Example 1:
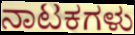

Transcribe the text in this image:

ನಾಟಕಗಳು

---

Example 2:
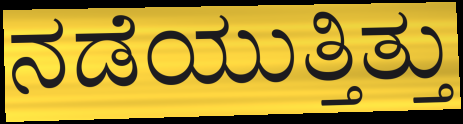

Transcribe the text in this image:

ನಡೆಯುತ್ತಿತ್ತು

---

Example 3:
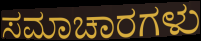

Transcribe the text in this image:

ಸಮಾಚಾರಗಳು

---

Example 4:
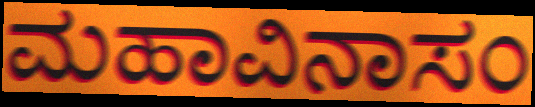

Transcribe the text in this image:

ಮಹಾವಿನಾಸಂ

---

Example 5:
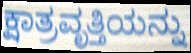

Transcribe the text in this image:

ಕ್ಷಾತ್ರವೃತ್ತಿಯನ್ನು